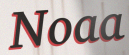
Noaa